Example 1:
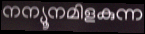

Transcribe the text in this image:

നന്യൂനമിളകുന്ന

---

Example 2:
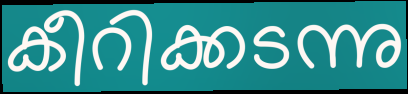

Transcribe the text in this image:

കീറിക്കടന്നു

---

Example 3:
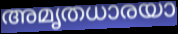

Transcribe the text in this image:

അമൃതധാരയാ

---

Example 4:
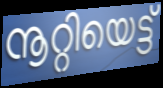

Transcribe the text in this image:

നൂറ്റിയെട്ട്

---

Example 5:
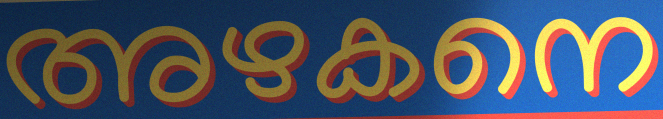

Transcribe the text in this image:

അഴകനെ